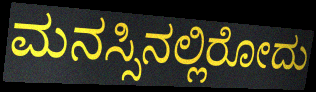
ಮನಸ್ಸಿನಲ್ಲಿರೋದು